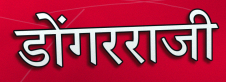
डोंगरराजी